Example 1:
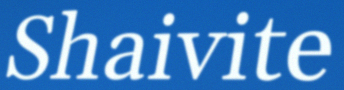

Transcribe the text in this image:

Shaivite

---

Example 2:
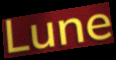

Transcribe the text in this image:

Lune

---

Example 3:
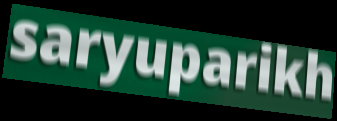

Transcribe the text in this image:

saryuparikh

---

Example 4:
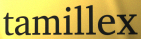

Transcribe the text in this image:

tamillex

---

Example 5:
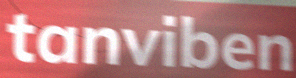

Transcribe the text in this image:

tanviben